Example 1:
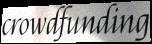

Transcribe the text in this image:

crowdfunding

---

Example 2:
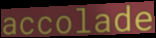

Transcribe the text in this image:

accolade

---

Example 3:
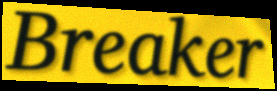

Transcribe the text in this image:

Breaker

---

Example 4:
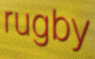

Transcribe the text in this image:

rugby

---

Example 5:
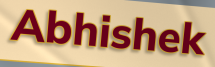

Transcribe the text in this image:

Abhishek